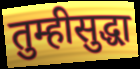
तुम्हीसुद्धा